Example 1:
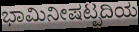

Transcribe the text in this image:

ಭಾಮಿನೀಷಟ್ಪದಿಯ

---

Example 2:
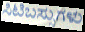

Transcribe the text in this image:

ಸಿಟಿಬಸ್ಸುಗಳು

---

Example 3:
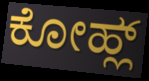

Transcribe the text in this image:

ಕೋಹ್ಲ್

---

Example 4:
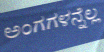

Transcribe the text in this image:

ಅಂಗಗಳನ್ನೆಲ್ಲ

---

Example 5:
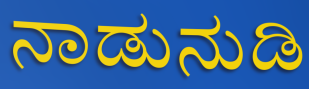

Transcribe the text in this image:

ನಾಡುನುಡಿ